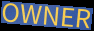
OWNER